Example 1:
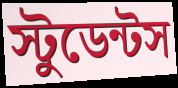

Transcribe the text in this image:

স্টুডেন্টস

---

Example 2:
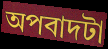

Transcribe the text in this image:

অপবাদটা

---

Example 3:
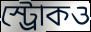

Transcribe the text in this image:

স্ট্রোকও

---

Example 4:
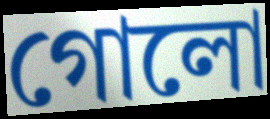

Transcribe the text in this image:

গোলো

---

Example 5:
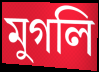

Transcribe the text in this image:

মুগলি